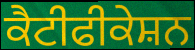
ਕੈਟੀਫੀਕੇਸ਼ਨ